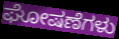
ಘೋಷಣೆಗಳು